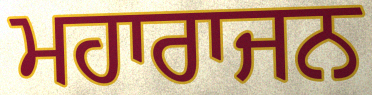
ਮਹਾਰਾਜਨ